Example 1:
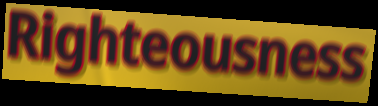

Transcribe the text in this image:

Righteousness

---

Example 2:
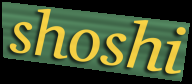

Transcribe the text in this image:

shoshi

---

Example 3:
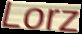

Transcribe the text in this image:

Lorz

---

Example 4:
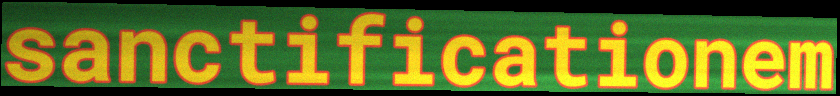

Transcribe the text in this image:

sanctificationem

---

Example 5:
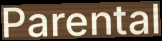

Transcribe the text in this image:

Parental